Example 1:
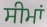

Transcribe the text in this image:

ਸੀਮਾਂ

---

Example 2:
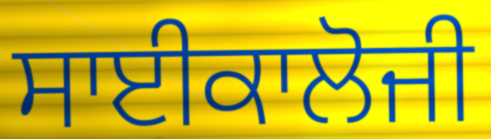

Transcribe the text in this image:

ਸਾਈਕਾਲੋਜੀ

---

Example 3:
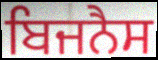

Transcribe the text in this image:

ਬਿਜਨੈਸ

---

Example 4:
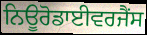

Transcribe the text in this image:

ਨਿਊਰੋਡਾਈਵਰਜੈਂਸ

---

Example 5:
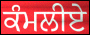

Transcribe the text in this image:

ਕੰਮਲੀਏ